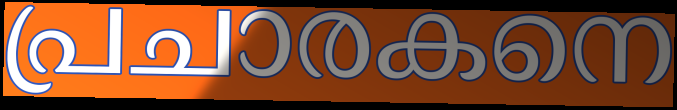
പ്രചാരകനെ